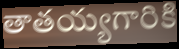
తాతయ్యగారికి